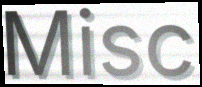
Misc